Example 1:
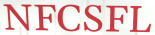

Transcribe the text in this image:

NFCSFL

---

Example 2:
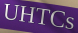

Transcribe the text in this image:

UHTCs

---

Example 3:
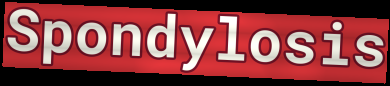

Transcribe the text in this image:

Spondylosis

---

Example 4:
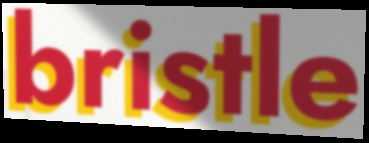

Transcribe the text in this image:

bristle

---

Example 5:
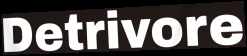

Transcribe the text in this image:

Detrivore